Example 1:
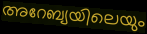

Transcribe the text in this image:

അറേബ്യയിലെയും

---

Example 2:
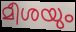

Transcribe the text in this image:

മീശയും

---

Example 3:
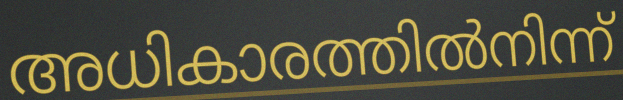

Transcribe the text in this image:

അധികാരത്തിൽനിന്ന്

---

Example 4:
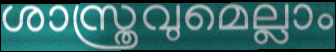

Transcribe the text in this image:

ശാസ്ത്രവുമെല്ലാം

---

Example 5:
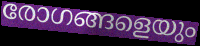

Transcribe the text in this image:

രോഗങ്ങളെയും